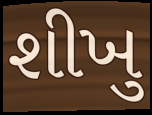
શીખુ